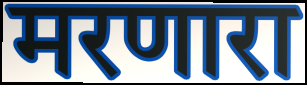
मरणारा